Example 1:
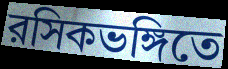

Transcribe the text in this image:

রসিকভঙ্গিতে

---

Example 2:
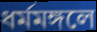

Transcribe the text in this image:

ধর্মমঙ্গলে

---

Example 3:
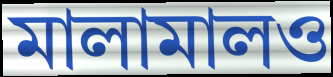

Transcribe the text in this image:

মালামালও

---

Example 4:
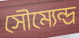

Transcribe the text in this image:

সৌম্যেন্দ্র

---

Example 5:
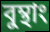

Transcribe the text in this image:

বুম্থাং